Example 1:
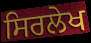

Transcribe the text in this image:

ਸਿਰਲੇਖ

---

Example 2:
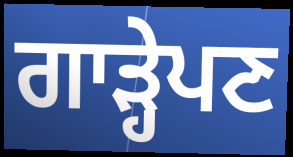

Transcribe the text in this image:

ਗਾੜ੍ਹੇਪਣ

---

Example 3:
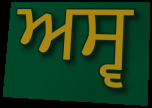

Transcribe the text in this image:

ਅਸ੍ਵ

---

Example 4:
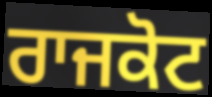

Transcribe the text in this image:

ਰਾਜਕੋਟ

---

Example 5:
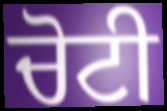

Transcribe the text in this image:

ਚੋਟੀ